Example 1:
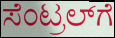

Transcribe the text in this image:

ಸೆಂಟ್ರಲ್‌ಗೆ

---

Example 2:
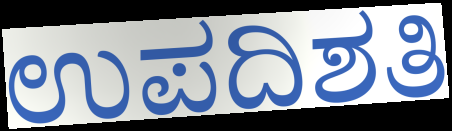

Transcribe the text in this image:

ಉಪದಿಶತಿ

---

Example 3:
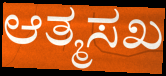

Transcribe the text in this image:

ಆತ್ಮಸಖ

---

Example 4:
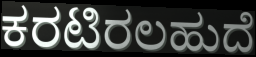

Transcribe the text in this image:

ಕರಟಿರಲಹುದೆ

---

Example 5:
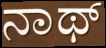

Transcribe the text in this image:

ನಾಥ್